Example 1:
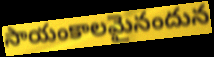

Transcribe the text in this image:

సాయంకాలమైనందున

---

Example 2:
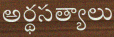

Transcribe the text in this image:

అర్థసత్యాలు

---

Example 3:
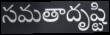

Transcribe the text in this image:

సమతాదృష్టి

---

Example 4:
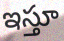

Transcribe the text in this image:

ఇస్తూ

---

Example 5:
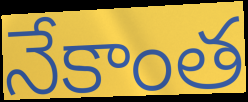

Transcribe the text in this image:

నేకాంత